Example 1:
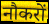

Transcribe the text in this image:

नौकरों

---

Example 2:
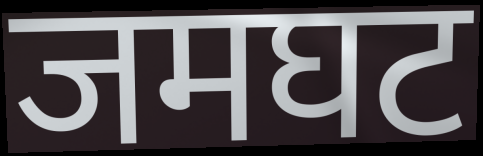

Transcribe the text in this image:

जमघट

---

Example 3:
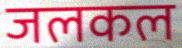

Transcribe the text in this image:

जलकल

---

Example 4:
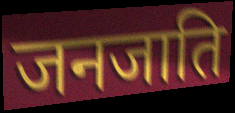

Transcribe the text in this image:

जनजाति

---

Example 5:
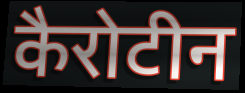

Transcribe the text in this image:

कैरोटीन